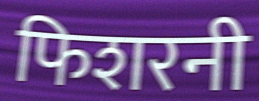
फिशरनी